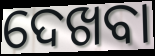
ଦେଖବା